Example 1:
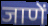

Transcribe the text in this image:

जाणें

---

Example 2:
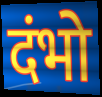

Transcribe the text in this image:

दंभो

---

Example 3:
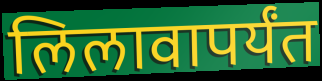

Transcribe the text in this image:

लिलावापर्यंत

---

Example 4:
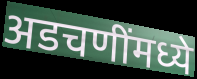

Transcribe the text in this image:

अडचणींमध्ये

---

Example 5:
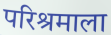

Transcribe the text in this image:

परिश्रमाला